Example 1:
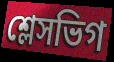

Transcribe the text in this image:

শ্লেসভিগ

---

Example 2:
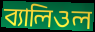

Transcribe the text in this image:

ব্যালিওল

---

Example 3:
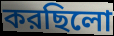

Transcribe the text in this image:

করছিলো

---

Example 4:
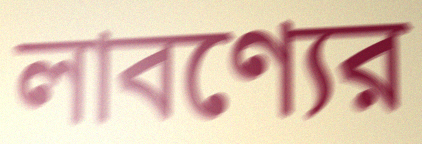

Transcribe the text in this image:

লাবণ্যের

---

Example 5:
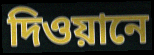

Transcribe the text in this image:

দিওয়ানে